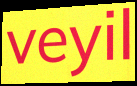
veyil